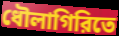
ধৌলাগিরিতে